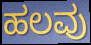
ಹಲವು